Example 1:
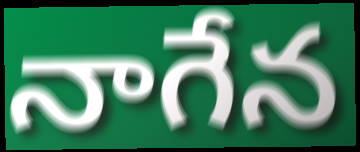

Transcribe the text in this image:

నాగేన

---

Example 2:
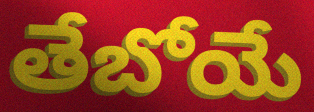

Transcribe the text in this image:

తేబోయే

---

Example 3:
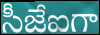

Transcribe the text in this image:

సీజేఐగా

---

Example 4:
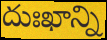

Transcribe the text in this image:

దుఃఖాన్ని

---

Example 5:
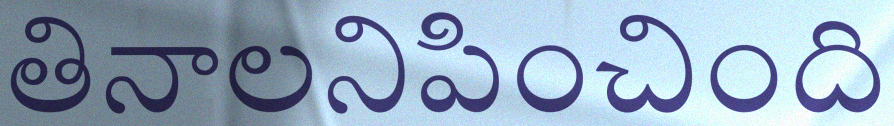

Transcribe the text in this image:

తినాలనిపించింది